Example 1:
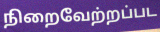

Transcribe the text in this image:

நிறைவேற்றப்பட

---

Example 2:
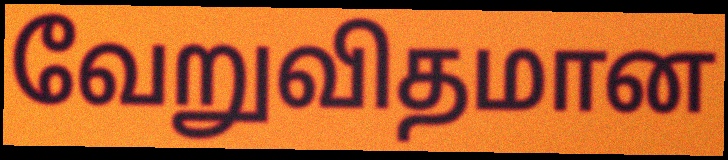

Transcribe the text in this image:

வேறுவிதமான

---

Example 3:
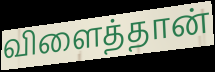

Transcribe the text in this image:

விளைத்தான்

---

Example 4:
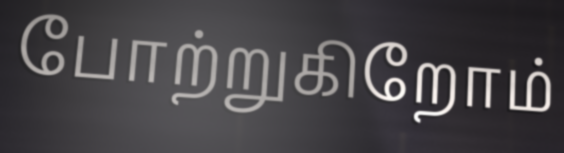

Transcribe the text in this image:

போற்றுகிறோம்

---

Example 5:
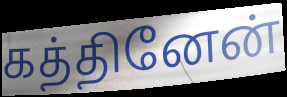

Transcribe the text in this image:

கத்தினேன்